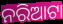
ନରିଆଟା